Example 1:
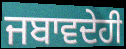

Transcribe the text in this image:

ਜਬਾਵਦੇਹੀ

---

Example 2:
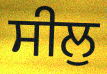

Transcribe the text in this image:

ਸੀਲੁ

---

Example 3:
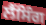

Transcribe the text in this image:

ਲੈਂਸਿੰਗ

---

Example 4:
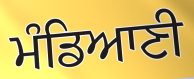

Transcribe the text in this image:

ਮੰਡਿਆਣੀ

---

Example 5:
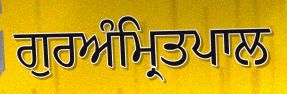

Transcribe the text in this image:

ਗੁਰਅੰਮ੍ਰਿਤਪਾਲ